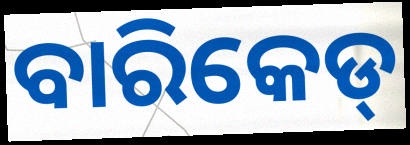
ବାରିକେଡ୍